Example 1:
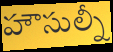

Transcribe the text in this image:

హౌసుల్నీ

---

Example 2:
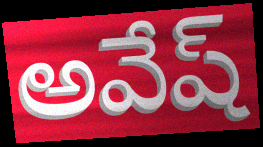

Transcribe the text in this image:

అవేష్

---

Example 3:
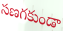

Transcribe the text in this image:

సణగకుండా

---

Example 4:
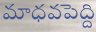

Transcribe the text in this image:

మాధవపెద్ది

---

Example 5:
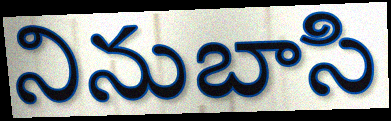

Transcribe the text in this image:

నినుబాసి